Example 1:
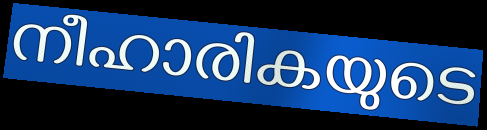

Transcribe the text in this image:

നീഹാരികയുടെ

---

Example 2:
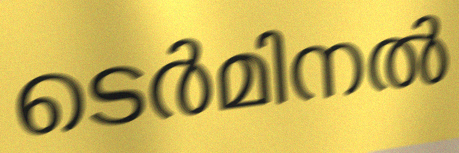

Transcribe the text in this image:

ടെർമിനൽ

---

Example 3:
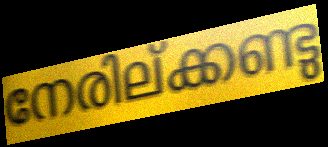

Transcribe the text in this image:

നേരില്ക്കണ്ടു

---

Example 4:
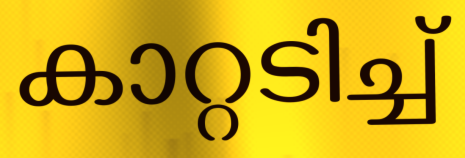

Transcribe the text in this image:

കാറ്റടിച്ച്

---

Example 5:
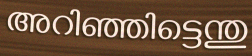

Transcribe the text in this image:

അറിഞ്ഞിട്ടെന്തു